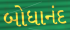
બોધાનંદ